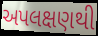
અપલક્ષણથી